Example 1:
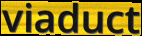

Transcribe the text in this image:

viaduct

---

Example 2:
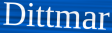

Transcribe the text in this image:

Dittmar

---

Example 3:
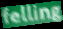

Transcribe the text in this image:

felling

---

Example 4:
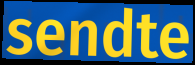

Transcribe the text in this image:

sendte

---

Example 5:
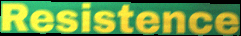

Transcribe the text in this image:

Resistence